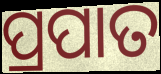
ପ୍ରପାତ